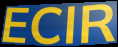
ECIR